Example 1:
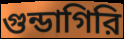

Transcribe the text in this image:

গুন্ডাগিরি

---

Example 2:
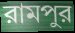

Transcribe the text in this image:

রামপুর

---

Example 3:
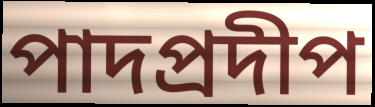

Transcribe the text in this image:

পাদপ্রদীপ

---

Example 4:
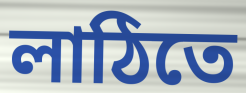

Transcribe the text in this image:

লাঠিতে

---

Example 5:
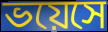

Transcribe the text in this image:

ভয়েসে